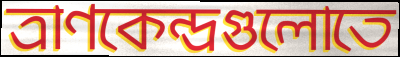
ত্রাণকেন্দ্রগুলোতে